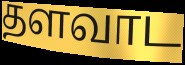
தளவாட